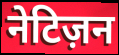
नेटिज़न